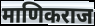
माणिकराज